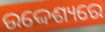
ଉଦ୍ଦେଶ୍ୟରେ